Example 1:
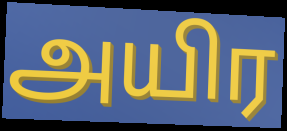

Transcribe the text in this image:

அயிர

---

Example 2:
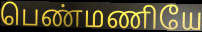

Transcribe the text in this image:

பெண்மணியே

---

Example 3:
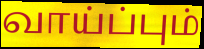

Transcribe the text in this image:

வாய்ப்பும்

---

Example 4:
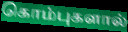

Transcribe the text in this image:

கொம்புகளால்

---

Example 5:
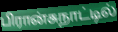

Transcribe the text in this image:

பிரான்சுநாட்டில்